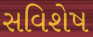
સવિશેષ